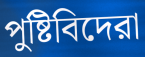
পুষ্টিবিদেরা